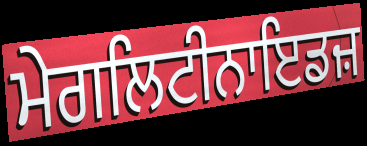
ਮੇਗਲਿਟੀਨਾਇਡਜ਼